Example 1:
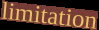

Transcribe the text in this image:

limitation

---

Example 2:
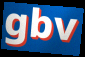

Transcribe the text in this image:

gbv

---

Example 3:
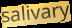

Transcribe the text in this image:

salivary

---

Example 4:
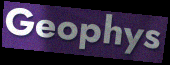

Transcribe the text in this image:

Geophys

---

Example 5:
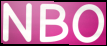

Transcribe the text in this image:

NBO